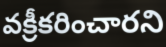
వక్రీకరించారని